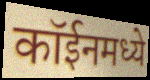
कॉईनमध्ये